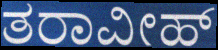
ತರಾವೀಹ್